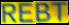
REBT